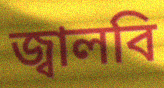
জ্বালবি